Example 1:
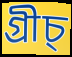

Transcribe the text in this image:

গ্ৰীচ্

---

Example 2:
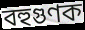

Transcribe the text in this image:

বহুগুণক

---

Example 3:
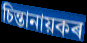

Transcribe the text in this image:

চিন্তানায়কৰ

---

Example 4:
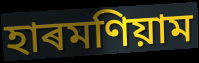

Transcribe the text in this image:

হাৰমণিয়াম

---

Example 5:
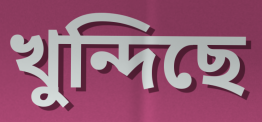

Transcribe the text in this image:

খুন্দিছে